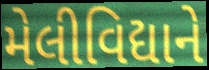
મેલીવિદ્યાને